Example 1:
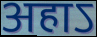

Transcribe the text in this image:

अहाऽ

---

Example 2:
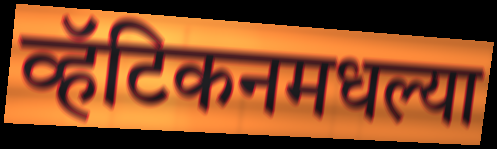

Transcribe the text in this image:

व्हॅटिकनमधल्या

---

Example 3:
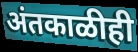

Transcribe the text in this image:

अंतकाळीही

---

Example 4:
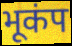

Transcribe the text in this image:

भूकंप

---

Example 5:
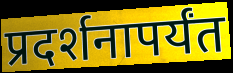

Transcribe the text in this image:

प्रदर्शनापर्यंत